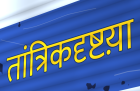
तांत्रिकदृष्टय़ा